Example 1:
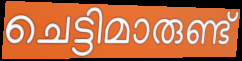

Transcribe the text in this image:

ചെട്ടിമാരുണ്ട്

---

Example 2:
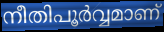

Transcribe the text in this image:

നീതിപൂർവ്വമാണ്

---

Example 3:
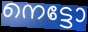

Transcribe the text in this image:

നെട്ടോ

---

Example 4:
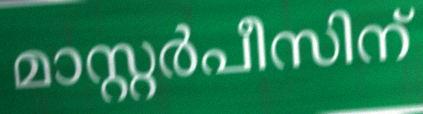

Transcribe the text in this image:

മാസ്റ്റർപീസിന്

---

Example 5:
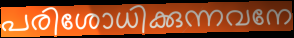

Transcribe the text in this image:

പരിശോധിക്കുന്നവനേ